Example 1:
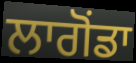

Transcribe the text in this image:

ਲਾਗੋਂਡਾ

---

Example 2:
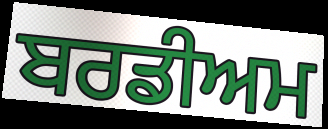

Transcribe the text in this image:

ਬਰਡੀਅਮ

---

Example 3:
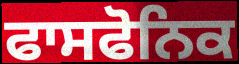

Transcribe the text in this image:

ਫਾਸਫੋਨਿਕ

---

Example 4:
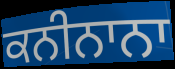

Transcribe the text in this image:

ਕਨੀਨਾਨਾ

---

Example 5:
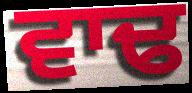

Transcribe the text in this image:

ਵਾਢ